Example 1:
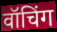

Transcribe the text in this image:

वॉचिंग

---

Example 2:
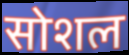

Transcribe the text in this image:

सोशल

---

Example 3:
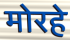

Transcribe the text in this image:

मोरहे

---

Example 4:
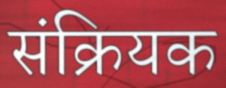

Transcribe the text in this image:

संक्रियक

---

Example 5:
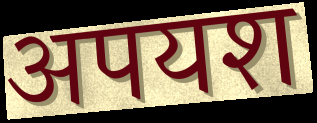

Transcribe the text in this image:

अपयश